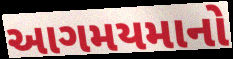
આગમયમાનો